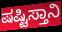
ಷಷ್ಟಿಸ್ತಾನಿ